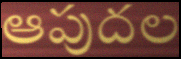
ఆపుదల